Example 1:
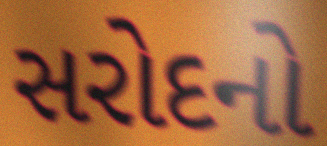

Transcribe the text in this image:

સરોદનો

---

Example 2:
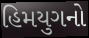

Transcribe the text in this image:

હિમયુગનો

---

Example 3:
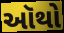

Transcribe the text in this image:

ઑથો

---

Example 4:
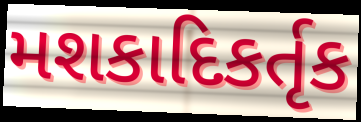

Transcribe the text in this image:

મશકાદિકર્તૃક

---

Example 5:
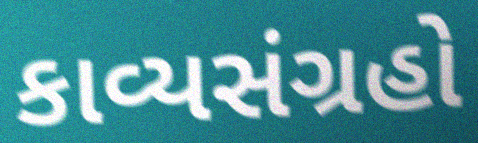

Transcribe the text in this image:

કાવ્યસંગ્રહો